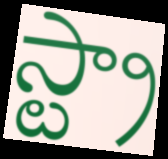
స్ట్రా